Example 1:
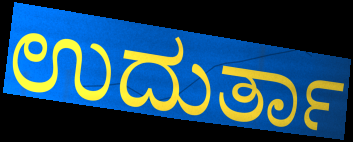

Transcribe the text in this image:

ಉದುರ್ತಾ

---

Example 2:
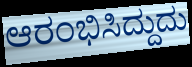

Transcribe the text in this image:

ಆರಂಭಿಸಿದ್ದುದು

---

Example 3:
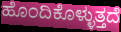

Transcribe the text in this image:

ಹೊಂದಿಕೊಳ್ಳುತ್ತದೆ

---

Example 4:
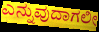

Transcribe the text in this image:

ಎನ್ನುವುದಾಗಲೀ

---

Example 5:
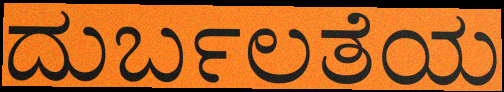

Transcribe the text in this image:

ದುರ್ಬಲತೆಯ